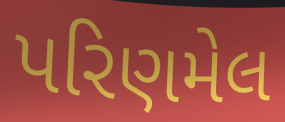
પરિણમેલ